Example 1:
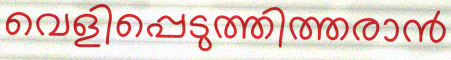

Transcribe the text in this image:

വെളിപ്പെടുത്തിത്തരാൻ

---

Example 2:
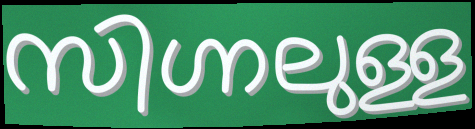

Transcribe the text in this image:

സിഗ്നലുള്ള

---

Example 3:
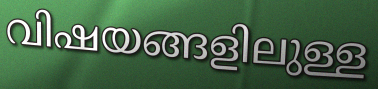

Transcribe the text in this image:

വിഷയങ്ങളിലുള്ള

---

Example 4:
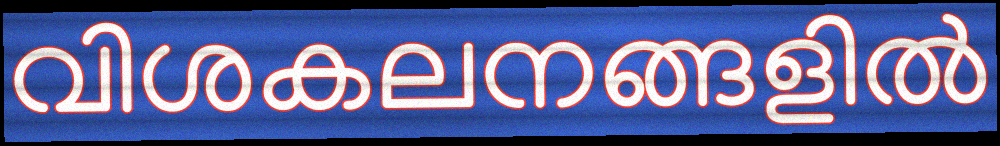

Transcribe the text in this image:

വിശകലനങ്ങളിൽ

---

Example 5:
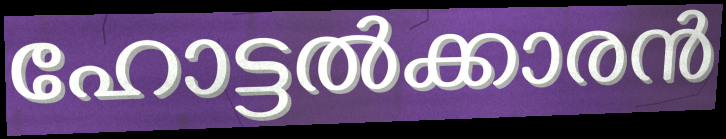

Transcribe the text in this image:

ഹോട്ടൽക്കാരൻ